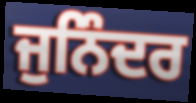
ਜੁਨਿੰਦਰ